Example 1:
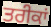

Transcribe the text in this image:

ਤਰੀਕਾਂ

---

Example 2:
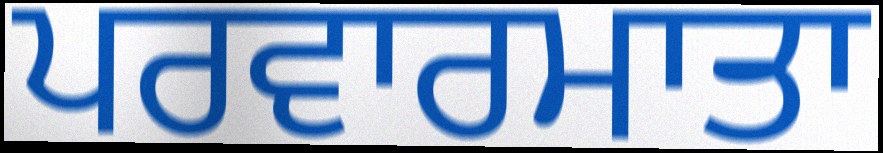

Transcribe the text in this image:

ਪਰਵਾਰਮਾਤਾ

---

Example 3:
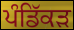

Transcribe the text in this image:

ਪੰਡਿੱਕੜ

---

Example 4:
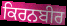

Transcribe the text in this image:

ਕਿਰਨਬੀਰ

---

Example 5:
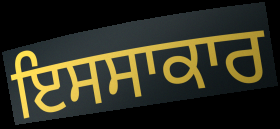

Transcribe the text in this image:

ਇਸਸਾਕਾਰ